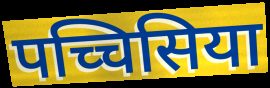
पच्चिसिया